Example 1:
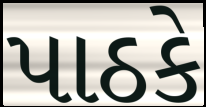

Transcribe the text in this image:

પાઠકે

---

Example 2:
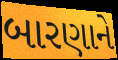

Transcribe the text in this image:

બારણાને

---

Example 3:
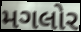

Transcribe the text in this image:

મગલોર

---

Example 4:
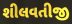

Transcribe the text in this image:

શીલવતીજી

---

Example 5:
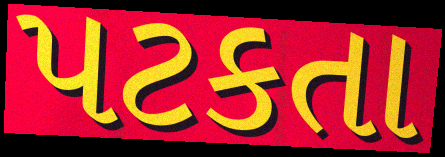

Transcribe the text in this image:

પટકતા